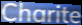
Charite